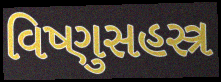
વિષ્ણુસહસ્ત્ર